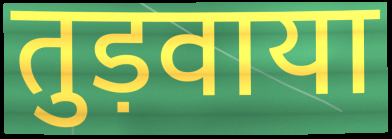
तुड़वाया